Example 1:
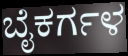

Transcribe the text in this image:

ಬೈಕರ್ಗಳ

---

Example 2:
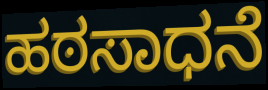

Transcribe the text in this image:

ಹಠಸಾಧನೆ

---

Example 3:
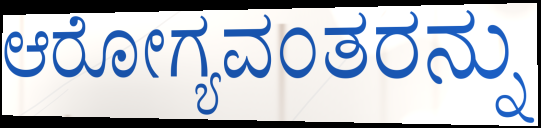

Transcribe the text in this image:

ಆರೋಗ್ಯವಂತರನ್ನು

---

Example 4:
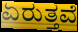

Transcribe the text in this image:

ಏರುತ್ತವೆ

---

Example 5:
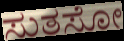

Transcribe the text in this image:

ಸುತಸೋ